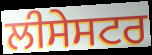
ਲੀਸੇਸਟਰ